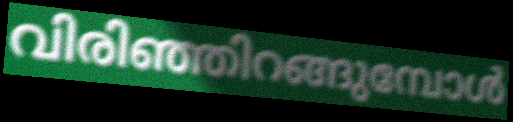
വിരിഞ്ഞിറങ്ങുമ്പോൾ